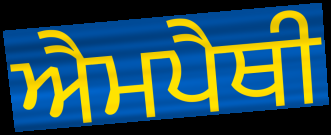
ਐਮਪੈਥੀ